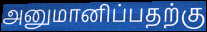
அனுமானிப்பதற்கு